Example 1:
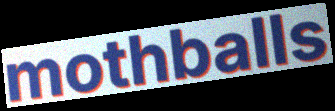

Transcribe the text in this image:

mothballs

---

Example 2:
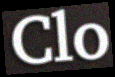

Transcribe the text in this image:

Clo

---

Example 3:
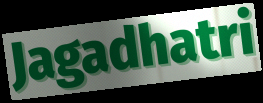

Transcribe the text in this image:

Jagadhatri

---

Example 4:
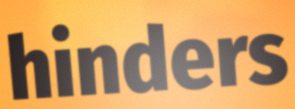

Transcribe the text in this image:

hinders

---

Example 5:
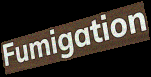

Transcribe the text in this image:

Fumigation